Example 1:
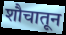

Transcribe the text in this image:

शौचातून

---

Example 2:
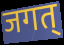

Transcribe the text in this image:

जगत्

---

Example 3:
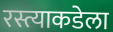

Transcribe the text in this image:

रस्त्याकडेला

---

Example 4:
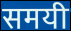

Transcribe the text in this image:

समयी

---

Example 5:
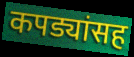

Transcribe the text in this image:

कपड्यांसह